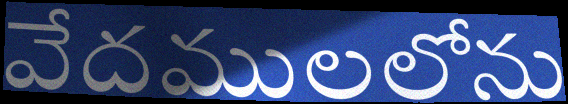
వేదములలోను